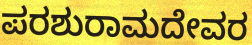
ಪರಶುರಾಮದೇವರ